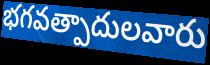
భగవత్పాదులవారు